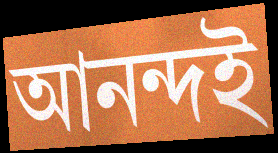
আনন্দই